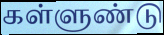
கள்ளுண்டு